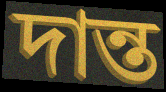
দান্ত